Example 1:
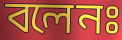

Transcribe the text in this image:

বলেনঃ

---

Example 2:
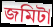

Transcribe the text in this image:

জমিটা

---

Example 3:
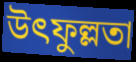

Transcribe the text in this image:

উৎফুল্লতা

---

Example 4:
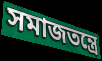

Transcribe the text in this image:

সমাজতন্ত্রে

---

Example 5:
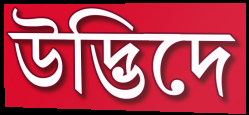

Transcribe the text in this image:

উদ্ভিদে